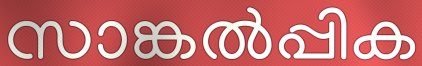
സാങ്കൽപ്പിക